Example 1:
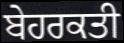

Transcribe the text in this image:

ਬੇਹਰਕਤੀ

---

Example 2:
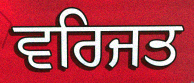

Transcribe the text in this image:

ਵਰਿਜਤ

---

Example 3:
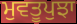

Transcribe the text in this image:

ਮੁਵਤੂਪੁਝਾ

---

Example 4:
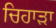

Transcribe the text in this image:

ਚਿਹਾੜਾ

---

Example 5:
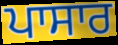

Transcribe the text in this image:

ਪਾਸਾਰ